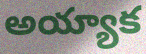
అయ్యాక